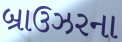
બ્રાઉઝરના